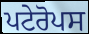
ਪਟੇਰੋਪਸ